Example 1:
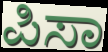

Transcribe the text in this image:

ಪಿಸಾ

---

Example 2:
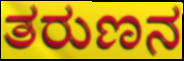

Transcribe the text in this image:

ತರುಣನ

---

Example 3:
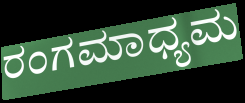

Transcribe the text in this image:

ರಂಗಮಾಧ್ಯಮ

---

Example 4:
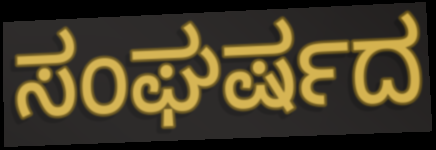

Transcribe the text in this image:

ಸಂಘರ್ಷದ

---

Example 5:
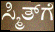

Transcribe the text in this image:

ಸ್ಮಿತ್‌ಗೆ